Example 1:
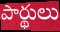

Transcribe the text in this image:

పార్థులు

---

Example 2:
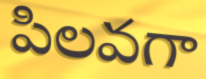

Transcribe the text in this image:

పిలవగా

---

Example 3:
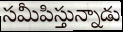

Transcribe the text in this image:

సమీపిస్తున్నాడు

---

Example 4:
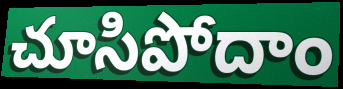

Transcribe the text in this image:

చూసిపోదాం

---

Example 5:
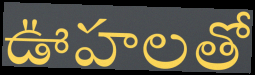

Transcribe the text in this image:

ఊహలతో